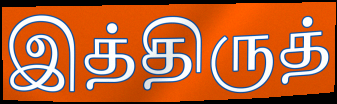
இத்திருத்